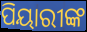
ପିୟାରୀଙ୍କ